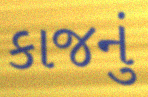
કાજનું